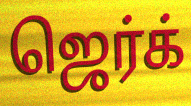
ஜெர்க்